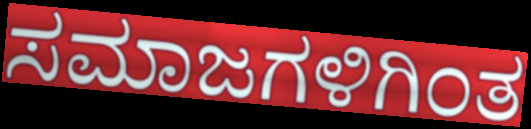
ಸಮಾಜಗಳಿಗಿಂತ